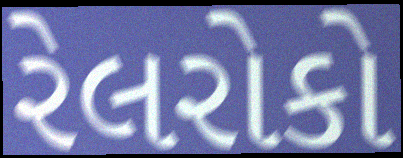
રેલરોકો